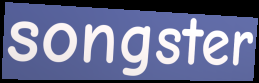
songster